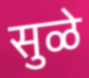
सुळे